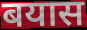
बयास